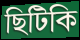
ছিটিকি